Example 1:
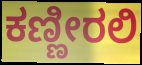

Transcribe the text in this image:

ಕಣ್ಣೀರಲಿ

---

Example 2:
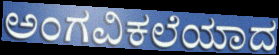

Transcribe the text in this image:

ಅಂಗವಿಕಲೆಯಾದ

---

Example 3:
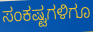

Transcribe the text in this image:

ಸಂಕಷ್ಟಗಳಿಗೂ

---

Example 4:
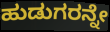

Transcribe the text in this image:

ಹುಡುಗರನ್ನೇ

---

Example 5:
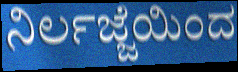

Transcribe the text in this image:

ನಿರ್ಲಜ್ಜೆಯಿಂದ